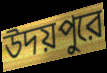
উদয়পুরে